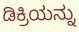
ಡಿಕ್ರಿಯನ್ನು